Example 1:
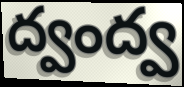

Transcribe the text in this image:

ద్వంద్వ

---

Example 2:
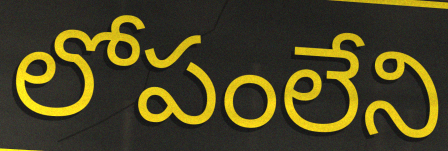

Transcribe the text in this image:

లోపంలేని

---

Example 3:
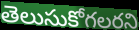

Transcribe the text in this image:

తెలుసుకోగలరని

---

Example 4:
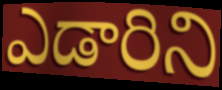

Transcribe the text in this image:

ఎడారిని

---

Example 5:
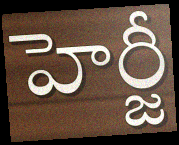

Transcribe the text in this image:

హెర్జీ